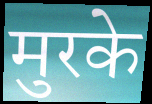
मुरके